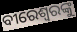
ବୀରେଶ୍ୱରଙ୍କୁ